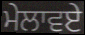
ਮੇਲਾਵਏ